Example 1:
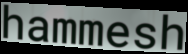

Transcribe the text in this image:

hammesh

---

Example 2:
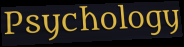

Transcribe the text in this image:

Psychology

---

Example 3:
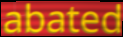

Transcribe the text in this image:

abated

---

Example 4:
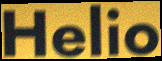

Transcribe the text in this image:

Helio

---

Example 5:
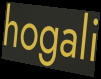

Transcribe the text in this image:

hogali